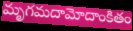
మృగమదామోదాంకితం